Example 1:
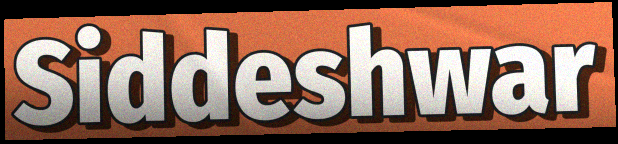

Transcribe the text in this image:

Siddeshwar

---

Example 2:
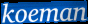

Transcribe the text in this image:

koeman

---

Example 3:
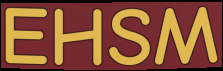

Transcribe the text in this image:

EHSM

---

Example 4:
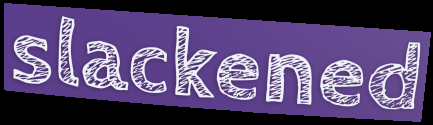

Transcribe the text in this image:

slackened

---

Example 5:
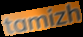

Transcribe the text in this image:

tamizh